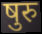
षुरु